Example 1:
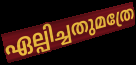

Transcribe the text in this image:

ഏല്പിച്ചതുമത്രേ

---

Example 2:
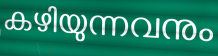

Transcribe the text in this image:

കഴിയുന്നവനും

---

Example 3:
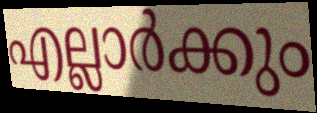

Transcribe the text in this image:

എല്ലാർക്കും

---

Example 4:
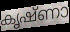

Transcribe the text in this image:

കൃഷ്ണാ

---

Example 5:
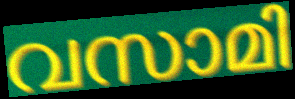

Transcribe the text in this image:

വസാമി